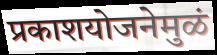
प्रकाशयोजनेमुळं